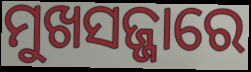
ମୁଖସଜ୍ଜାରେ